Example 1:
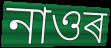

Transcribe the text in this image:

নাওৰ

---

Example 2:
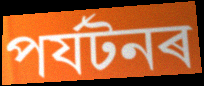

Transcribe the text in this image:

পৰ্যটনৰ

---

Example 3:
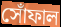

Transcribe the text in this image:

সোঁফাল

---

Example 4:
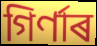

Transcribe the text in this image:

গিৰ্ণাৰ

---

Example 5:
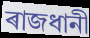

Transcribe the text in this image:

ৰাজধানী